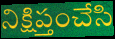
నిక్షిప్తంచేసి